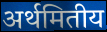
अर्थमितीय